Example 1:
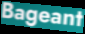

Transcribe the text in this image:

Bageant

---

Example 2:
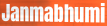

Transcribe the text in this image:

Janmabhumi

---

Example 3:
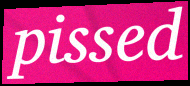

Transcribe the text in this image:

pissed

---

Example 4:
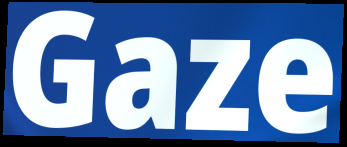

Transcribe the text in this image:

Gaze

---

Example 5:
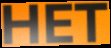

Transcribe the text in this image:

HET